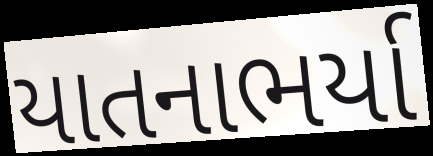
યાતનાભર્યા